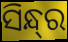
ସିନ୍ଧ୍‌ର